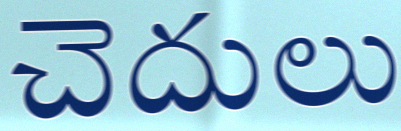
చెదులు